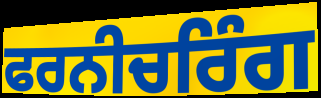
ਫਰਨੀਚਰਿੰਗ